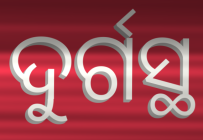
ଦୁର୍ଗସ୍ଥ